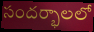
సందర్భాలలో